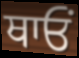
ਥਾਓਂ